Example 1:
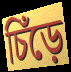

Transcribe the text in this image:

চিঁড়ে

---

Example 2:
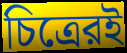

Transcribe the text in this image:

চিত্রেরই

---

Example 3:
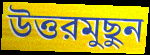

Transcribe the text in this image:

উত্তরমুছুন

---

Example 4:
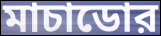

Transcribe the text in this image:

মাচাডোর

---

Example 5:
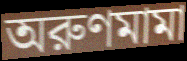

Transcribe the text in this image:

অরুণমামা